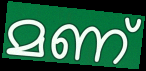
മണ്